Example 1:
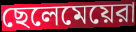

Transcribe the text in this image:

ছেলেমেয়েরা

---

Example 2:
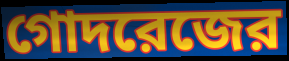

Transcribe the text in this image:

গোদরেজের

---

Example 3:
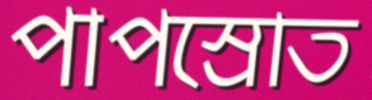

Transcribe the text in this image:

পাপস্রোত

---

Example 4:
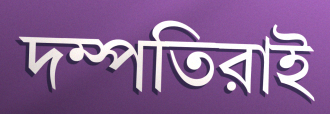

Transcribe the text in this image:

দম্পতিরাই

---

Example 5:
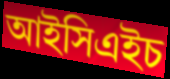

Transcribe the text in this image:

আইসিএইচ